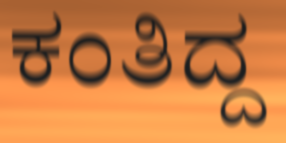
ಕಂತಿದ್ದ